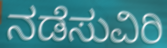
ನಡೆಸುವಿರಿ